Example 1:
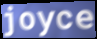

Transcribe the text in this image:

joyce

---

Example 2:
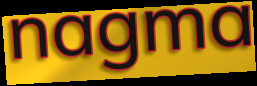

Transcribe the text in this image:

nagma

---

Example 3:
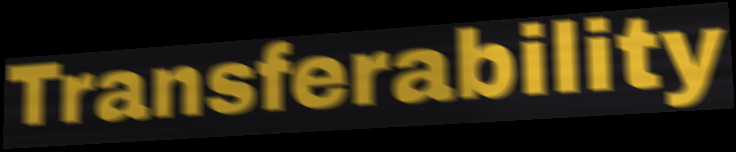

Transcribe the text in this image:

Transferability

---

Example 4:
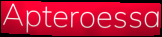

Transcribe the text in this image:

Apteroessa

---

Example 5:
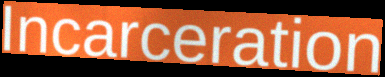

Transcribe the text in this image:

Incarceration